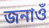
জনাওঁ